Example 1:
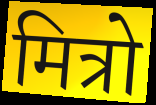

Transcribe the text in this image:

मित्रो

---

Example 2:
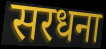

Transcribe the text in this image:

सरधना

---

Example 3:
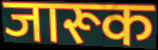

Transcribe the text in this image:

जारूक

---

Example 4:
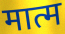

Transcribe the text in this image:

मात्म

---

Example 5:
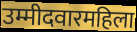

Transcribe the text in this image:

उम्मीदवारमहिला